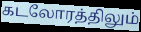
கடலோரத்திலும்